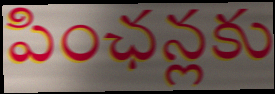
పింఛన్లకు